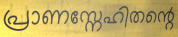
പ്രാണസ്നേഹിതന്റെ